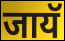
जायॅ